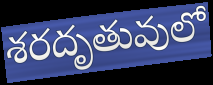
శరదృతువులో